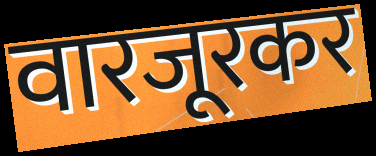
वारजूरकर